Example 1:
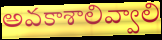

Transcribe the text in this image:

అవకాశాలివ్వాలి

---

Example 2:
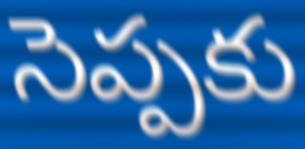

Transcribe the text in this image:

సెప్పకు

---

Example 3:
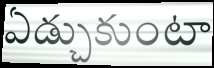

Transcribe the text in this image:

ఏడ్చుకుంటా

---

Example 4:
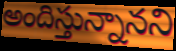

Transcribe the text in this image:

అందిస్తున్నానని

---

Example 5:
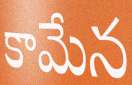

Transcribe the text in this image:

కామేన